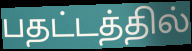
பதட்டத்தில்